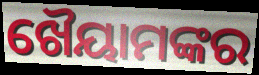
ଖୈୟାମଙ୍କର